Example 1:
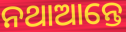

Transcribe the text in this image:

ନଥାଆନ୍ତେ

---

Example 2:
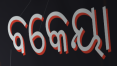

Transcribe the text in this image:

ବକେୟା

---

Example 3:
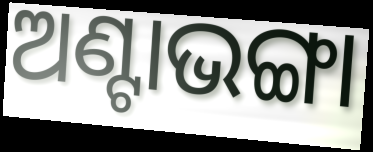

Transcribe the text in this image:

ଅଣ୍ଟାଭଙ୍ଗା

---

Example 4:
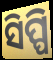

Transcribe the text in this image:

ସିପ୍ପି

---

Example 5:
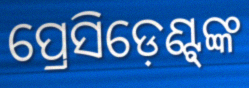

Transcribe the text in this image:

ପ୍ରେସିଡ଼େଣ୍ଟ୍‍ଙ୍କ